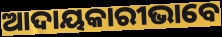
ଆଦାୟକାରୀଭାବେ